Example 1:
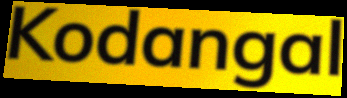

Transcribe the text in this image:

Kodangal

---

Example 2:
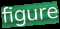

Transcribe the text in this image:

figure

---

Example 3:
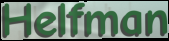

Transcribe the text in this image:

Helfman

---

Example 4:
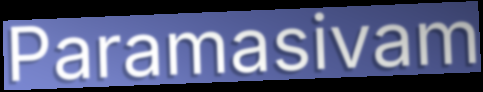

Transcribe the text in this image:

Paramasivam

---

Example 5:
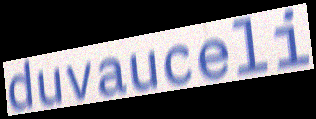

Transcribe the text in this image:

duvauceli